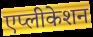
एप्लीकेशन